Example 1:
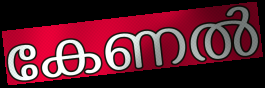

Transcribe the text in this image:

കേണൽ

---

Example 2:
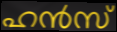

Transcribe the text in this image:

ഹൻസ്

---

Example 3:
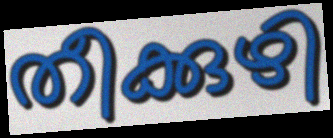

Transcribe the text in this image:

തീക്കുഴി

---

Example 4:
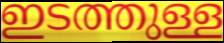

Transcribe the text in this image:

ഇടത്തുള്ള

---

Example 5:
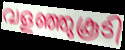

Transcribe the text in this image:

വളഞ്ഞുകൂടി